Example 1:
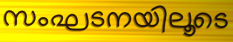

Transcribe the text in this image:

സംഘടനയിലൂടെ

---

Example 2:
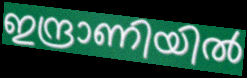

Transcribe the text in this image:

ഇന്ദ്രാണിയിൽ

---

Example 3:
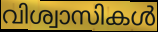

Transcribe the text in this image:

വിശ്വാസികൾ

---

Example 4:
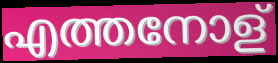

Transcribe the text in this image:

എത്തനോള്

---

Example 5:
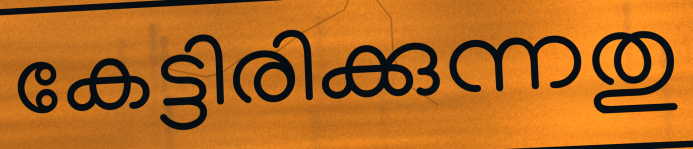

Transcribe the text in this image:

കേട്ടിരിക്കുന്നതു